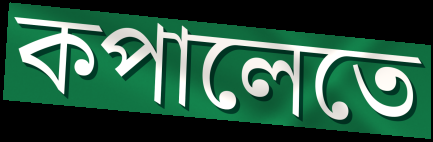
কপালেতে